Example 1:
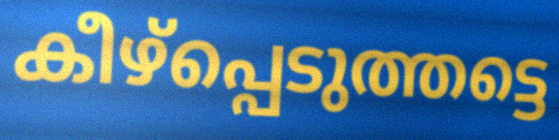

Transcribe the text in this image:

കീഴ്പ്പെടുത്തട്ടെ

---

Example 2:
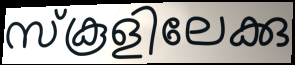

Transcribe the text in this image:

സ്കൂളിലേക്കു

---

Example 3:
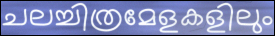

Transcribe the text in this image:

ചലച്ചിത്രമേളകളിലും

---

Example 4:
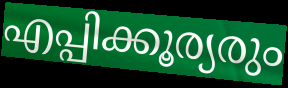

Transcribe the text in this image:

എപ്പിക്കൂര്യരും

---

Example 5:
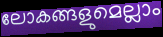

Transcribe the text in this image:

ലോകങ്ങളുമെല്ലാം